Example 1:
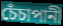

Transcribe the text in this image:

চেঁচাপানী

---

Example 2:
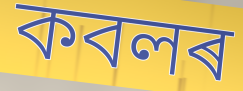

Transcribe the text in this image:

কবলৰ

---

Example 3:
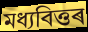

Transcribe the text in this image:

মধ্যবিত্তৰ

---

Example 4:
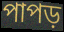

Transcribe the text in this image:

পাপড়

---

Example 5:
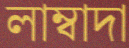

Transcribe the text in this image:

লাম্বাদা